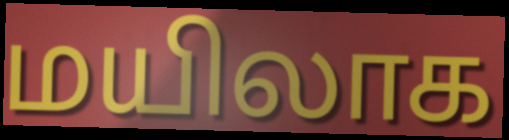
மயிலாக